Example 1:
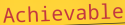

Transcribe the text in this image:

Achievable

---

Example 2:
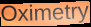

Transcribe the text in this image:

Oximetry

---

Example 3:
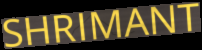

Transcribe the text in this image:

SHRIMANT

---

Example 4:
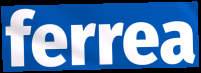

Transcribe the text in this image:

ferrea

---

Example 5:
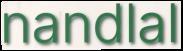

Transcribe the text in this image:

nandlal